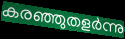
കരഞ്ഞുതളർന്നു